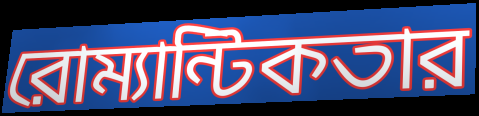
রোম্যান্টিকতার